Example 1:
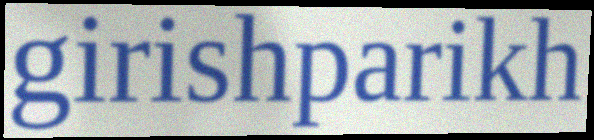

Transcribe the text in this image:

girishparikh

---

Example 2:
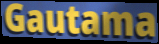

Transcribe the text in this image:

Gautama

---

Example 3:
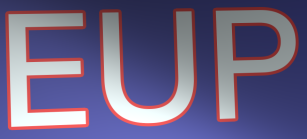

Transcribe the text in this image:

EUP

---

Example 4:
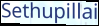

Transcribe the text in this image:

Sethupillai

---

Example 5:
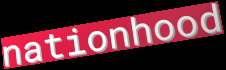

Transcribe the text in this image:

nationhood